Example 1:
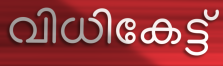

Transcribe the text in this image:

വിധികേട്ട്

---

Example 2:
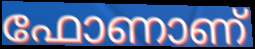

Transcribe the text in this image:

ഫോണാണ്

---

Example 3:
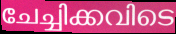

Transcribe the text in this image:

ചേച്ചിക്കവിടെ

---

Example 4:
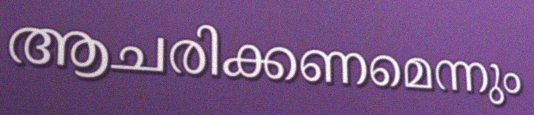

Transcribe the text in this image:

ആചരിക്കണമെന്നും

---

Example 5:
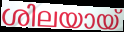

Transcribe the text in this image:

ശിലയായ്